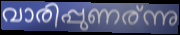
വാരിപ്പുണര്ന്നു